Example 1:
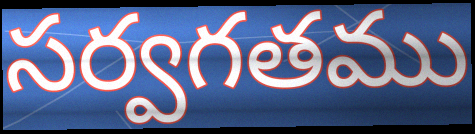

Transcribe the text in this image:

సర్వగతము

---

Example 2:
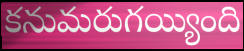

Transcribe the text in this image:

కనుమరుగయ్యింది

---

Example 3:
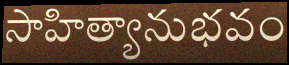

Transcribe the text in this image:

సాహిత్యానుభవం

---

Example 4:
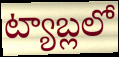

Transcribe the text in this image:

ట్యాబ్లలో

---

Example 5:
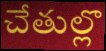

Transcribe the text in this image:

చేతుల్లొ